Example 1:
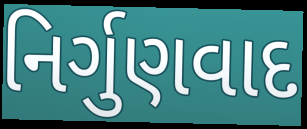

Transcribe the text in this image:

નિર્ગુણવાદ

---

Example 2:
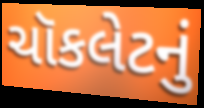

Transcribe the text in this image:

ચૉકલેટનું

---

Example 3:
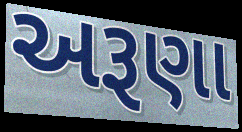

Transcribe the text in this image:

અરૂણા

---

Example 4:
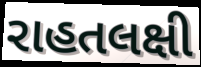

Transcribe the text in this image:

રાહતલક્ષી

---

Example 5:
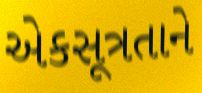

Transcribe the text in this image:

એકસૂત્રતાને